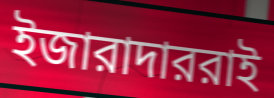
ইজারাদাররাই